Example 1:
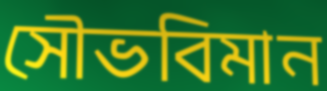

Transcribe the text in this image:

সৌভবিমান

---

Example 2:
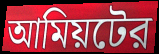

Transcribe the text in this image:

আমিয়টের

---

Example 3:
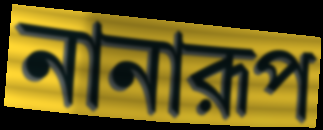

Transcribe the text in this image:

নানারূপ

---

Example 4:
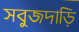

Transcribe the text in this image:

সবুজদাড়ি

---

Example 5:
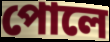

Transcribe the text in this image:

পোলে